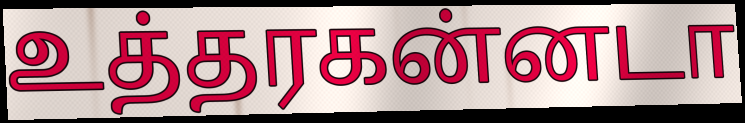
உத்தரகன்னடா